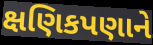
ક્ષણિકપણાને